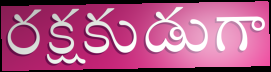
రక్షకుడుగా